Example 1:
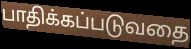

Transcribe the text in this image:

பாதிக்கப்படுவதை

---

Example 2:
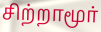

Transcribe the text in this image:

சிற்றாமூர்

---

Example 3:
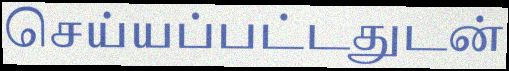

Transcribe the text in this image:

செய்யப்பட்டதுடன்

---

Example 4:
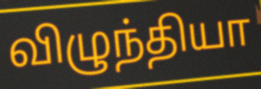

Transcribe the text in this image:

விழுந்தியா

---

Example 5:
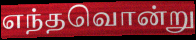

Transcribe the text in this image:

எந்தவொன்று